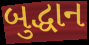
બુદ્ધાન